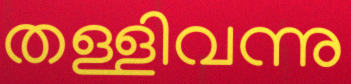
തള്ളിവന്നു